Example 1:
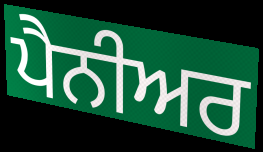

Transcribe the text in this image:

ਪੈਨੀਅਰ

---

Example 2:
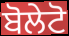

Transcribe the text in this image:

ਬੋਲੇਟੋ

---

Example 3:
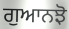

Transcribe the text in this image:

ਗੁਆਨਝੋ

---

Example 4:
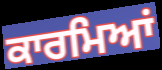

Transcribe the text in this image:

ਕਾਰਮਿਆਂ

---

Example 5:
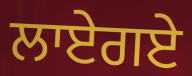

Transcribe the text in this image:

ਲਾਏਗਏ